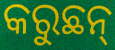
କରୁଛନ୍